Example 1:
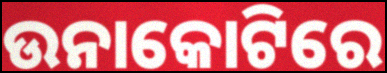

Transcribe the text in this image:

ଉନାକୋଟିରେ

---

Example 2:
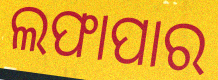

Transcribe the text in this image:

ଲଫାପାର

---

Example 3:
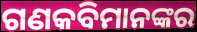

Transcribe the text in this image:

ଗଣକବିମାନଙ୍କର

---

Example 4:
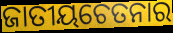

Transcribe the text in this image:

ଜାତୀୟଚେତନାର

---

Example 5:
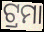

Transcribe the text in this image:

ଟ୍ରମା